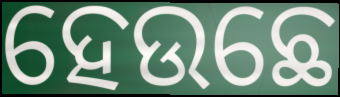
ହେଉଛେ